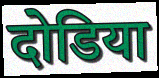
दोडिया